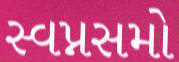
સ્વપ્નસમો